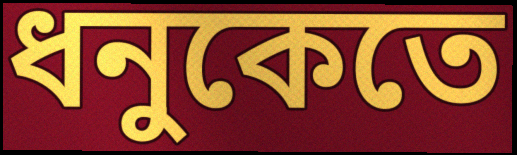
ধনুকেতে